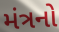
મંત્રનો